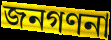
জনগণনা